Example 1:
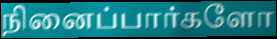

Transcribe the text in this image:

நினைப்பார்களோ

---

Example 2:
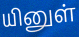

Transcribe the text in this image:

யினுள்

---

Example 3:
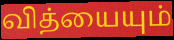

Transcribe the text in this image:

வித்யையும்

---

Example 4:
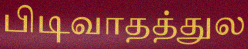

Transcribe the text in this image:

பிடிவாதத்துல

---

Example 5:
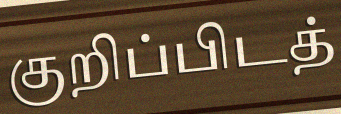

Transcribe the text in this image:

குறிப்பிடத்